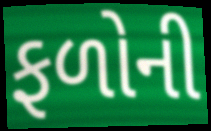
ફળોની